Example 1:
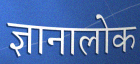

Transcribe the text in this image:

ज्ञानालोक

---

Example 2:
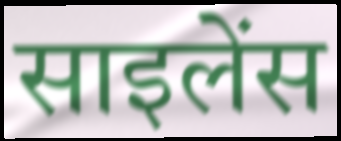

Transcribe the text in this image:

साइलेंस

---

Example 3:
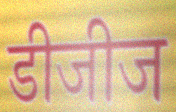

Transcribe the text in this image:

डीजीज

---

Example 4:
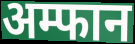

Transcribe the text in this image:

अम्फान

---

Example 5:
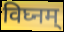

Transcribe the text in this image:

विघ्नम्